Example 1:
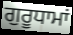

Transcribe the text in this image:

ਗੁਰੂਧਾਮਾਂ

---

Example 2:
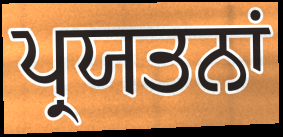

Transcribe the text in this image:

ਪ੍ਰਯਤਨਾਂ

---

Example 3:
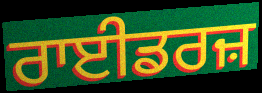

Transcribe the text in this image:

ਰਾਈਡਰਜ਼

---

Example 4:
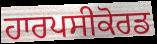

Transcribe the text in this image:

ਹਾਰਪਸੀਕੋਰਡ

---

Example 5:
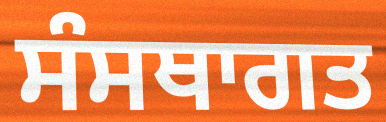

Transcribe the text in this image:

ਸੰਸਥਾਗਤ